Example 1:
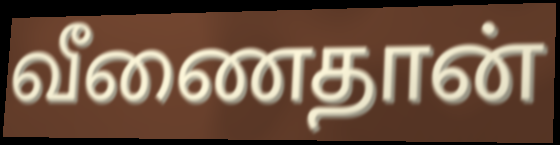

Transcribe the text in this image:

வீணைதான்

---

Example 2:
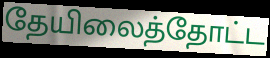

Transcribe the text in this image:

தேயிலைத்தோட்ட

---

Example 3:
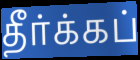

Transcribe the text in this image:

தீர்க்கப்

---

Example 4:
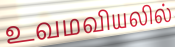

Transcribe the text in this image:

உவமவியலில்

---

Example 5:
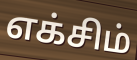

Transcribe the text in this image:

எக்சிம்